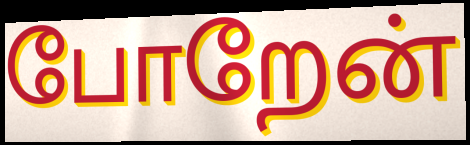
போறேன்